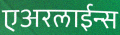
एअरलाईन्स